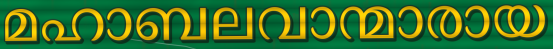
മഹാബലവാന്മാരായ